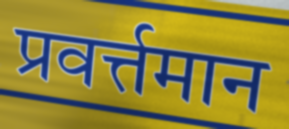
प्रवर्त्तमान